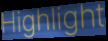
Highlight